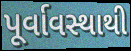
પૂર્વાવસ્થાથી